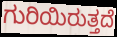
ಗುರಿಯಿರುತ್ತದೆ